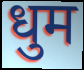
धुम